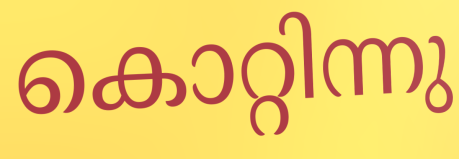
കൊറ്റിന്നു